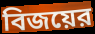
বিজয়ের